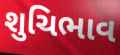
શુચિભાવ